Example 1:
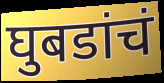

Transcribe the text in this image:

घुबडांचं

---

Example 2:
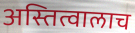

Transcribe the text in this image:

अस्तित्वालाच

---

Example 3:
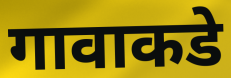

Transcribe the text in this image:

गावाकडे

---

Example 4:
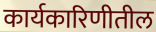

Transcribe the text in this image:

कार्यकारिणीतील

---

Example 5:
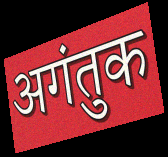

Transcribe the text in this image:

अगंतुक